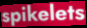
spikelets